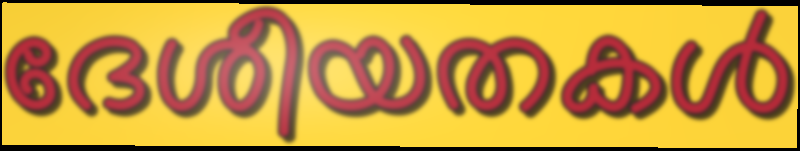
ദേശീയതകൾ